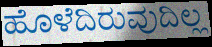
ಹೊಳೆದಿರುವುದಿಲ್ಲ